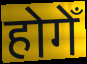
होगेँ